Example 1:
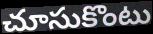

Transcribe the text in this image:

చూసుకొంటు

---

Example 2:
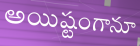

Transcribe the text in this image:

అయిష్టంగానూ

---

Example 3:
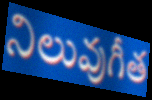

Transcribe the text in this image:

నిలువుగీత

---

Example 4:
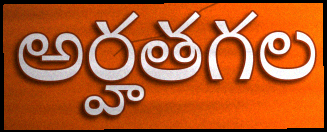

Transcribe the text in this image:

అర్హతగల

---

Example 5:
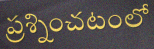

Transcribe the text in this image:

ప్రశ్నించటంలో